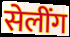
सेलींग